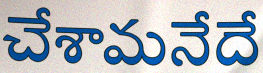
చేశామనేదే